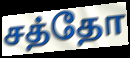
சத்தோ